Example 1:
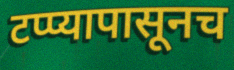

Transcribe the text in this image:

टप्प्यापासूनच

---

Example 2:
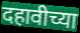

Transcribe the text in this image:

दहावीच्या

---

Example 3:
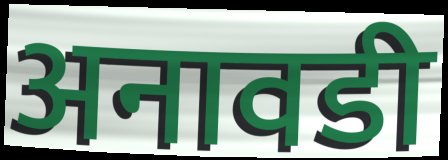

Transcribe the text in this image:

अनावडी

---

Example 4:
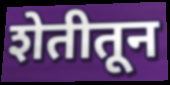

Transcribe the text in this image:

शेतीतून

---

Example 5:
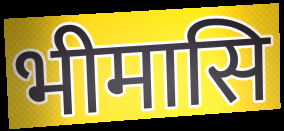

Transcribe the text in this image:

भीमासि